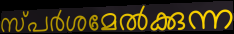
സ്പർശമേൽക്കുന്ന